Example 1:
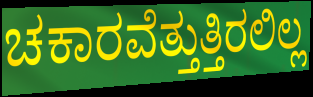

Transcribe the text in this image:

ಚಕಾರವೆತ್ತುತ್ತಿರಲಿಲ್ಲ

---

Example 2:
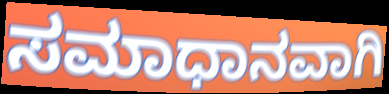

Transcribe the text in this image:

ಸಮಾಧಾನವಾಗಿ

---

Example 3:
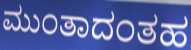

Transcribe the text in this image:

ಮುಂತಾದಂತಹ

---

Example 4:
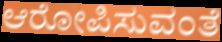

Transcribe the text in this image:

ಆರೋಪಿಸುವಂತೆ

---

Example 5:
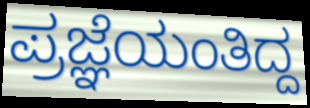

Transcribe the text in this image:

ಪ್ರಜ್ಞೆಯಂತಿದ್ದ